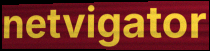
netvigator